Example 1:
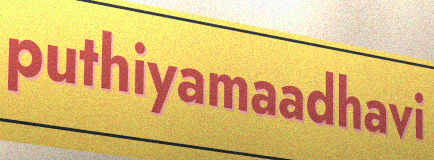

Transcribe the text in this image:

puthiyamaadhavi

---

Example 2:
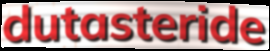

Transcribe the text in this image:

dutasteride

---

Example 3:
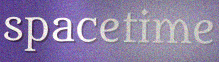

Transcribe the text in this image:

spacetime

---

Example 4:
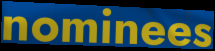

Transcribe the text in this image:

nominees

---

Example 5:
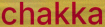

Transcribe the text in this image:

chakka